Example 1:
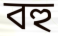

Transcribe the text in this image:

বহু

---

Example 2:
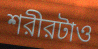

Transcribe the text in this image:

শরীরটাও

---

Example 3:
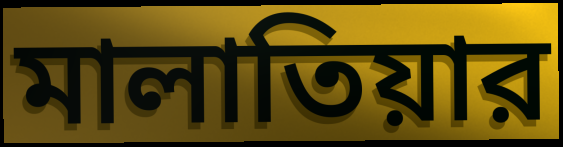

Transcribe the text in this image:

মালাতিয়ার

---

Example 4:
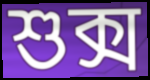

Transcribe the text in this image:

শুক্স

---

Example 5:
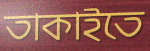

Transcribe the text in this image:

তাকাইতে